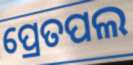
ପ୍ରେତପଲ